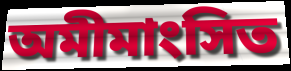
অমীমাংসিত